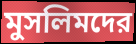
মুসলিমদের